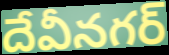
దేవీనగర్